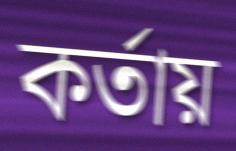
কর্তায়